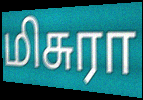
மிசுரா